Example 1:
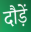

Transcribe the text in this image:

दौड़ें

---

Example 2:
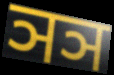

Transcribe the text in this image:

ञञ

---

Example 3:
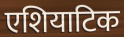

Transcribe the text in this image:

एशियाटिक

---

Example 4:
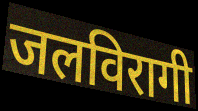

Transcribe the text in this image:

जलविरागी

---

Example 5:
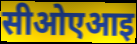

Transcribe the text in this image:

सीओएआइ